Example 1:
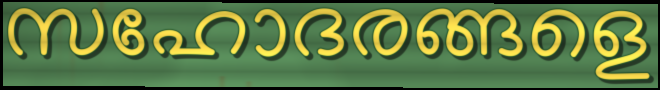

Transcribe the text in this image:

സഹോദരങ്ങളെ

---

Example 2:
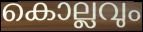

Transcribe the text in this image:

കൊല്ലവും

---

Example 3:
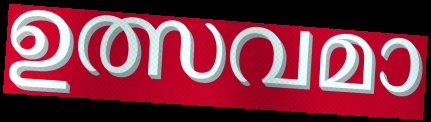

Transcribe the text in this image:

ഉത്സവമാ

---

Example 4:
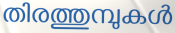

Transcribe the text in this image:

തിരത്തുമ്പുകൾ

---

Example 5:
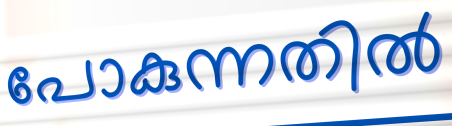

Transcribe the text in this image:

പോകുന്നതിൽ